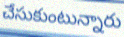
చేసుకుంటున్నారు